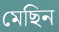
মেছিন